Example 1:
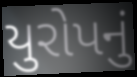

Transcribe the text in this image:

યુરોપનું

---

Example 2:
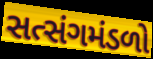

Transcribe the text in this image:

સત્સંગમંડળો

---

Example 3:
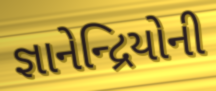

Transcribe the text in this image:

જ્ઞાનેન્દ્રિયોની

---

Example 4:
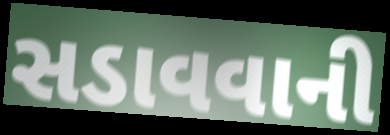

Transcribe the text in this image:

સડાવવાની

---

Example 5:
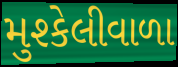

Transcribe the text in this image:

મુશ્કેલીવાળા